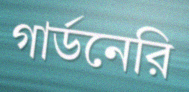
গার্ডনেরি